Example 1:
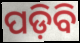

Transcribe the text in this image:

ପଡ଼ିବି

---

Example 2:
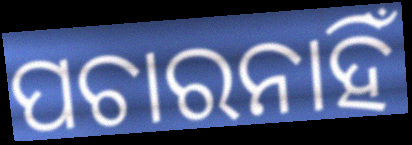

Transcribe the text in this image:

ପଚାରନାହିଁ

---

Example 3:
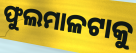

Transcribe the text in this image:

ଫୁଲମାଳଟାକୁ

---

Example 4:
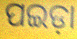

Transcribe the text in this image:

ପଇଡ଼ା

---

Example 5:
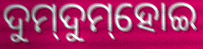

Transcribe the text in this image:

ଦୁମ୍‌ଦୁମ୍‌ହୋଇ